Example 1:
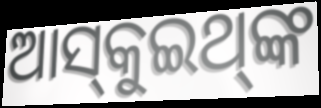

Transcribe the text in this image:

ଆସ୍‌କୁଇଥ୍‌ଙ୍କ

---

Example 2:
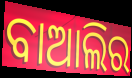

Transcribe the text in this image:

ବାଆଲିର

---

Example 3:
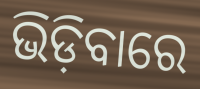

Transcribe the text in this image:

ଭିଡ଼ିବାରେ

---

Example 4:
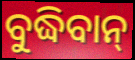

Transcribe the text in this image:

ବୁଦ୍ଧିବାନ୍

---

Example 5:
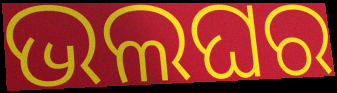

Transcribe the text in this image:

ଭଲଘର